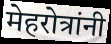
मेहरोत्रांनी